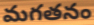
మగతనం